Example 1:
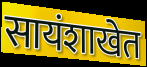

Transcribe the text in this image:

सायंशाखेत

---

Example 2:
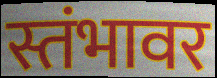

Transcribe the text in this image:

स्तंभावर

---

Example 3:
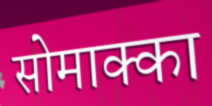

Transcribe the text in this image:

सोमाक्का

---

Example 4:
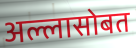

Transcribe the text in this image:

अल्लासोबत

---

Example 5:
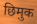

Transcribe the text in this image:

छिमुक